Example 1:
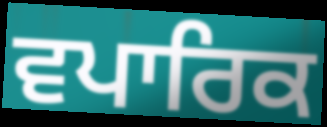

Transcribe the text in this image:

ਵਪਾਰਿਕ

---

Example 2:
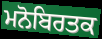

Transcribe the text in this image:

ਮਨੋਬਿਰਤਕ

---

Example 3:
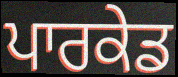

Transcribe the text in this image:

ਪਾਰਕੇਡ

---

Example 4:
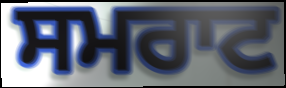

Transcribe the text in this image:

ਸਮਰਾਟ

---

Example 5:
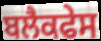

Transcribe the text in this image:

ਬਲੈਕਫੇਸ